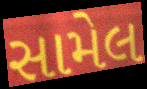
સામેલ